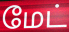
மேட்